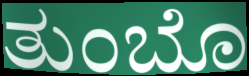
ತುಂಬೊ